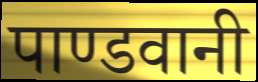
पाण्डवानी